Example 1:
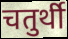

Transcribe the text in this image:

चतुर्थी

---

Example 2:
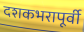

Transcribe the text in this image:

दशकभरापूर्वी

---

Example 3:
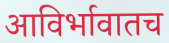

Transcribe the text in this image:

आविर्भावातच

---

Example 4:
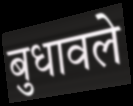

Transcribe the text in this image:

बुधावले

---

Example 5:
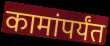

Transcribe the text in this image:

कामांपर्यंत